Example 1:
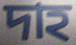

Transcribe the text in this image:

দাহ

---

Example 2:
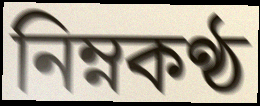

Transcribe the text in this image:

নিম্নকণ্ঠ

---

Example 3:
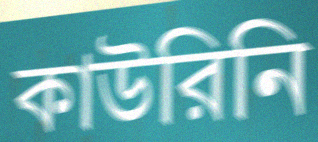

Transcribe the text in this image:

কাউরিনি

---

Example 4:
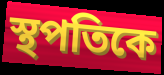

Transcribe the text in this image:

স্থপতিকে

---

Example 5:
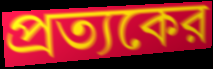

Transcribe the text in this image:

প্রত্যকের